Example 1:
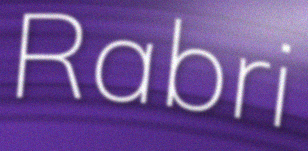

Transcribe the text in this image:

Rabri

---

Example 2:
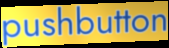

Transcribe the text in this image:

pushbutton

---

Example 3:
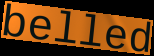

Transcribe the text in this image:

belled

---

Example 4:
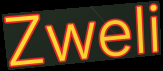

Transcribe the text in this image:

Zweli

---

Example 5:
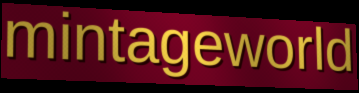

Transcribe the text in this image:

mintageworld